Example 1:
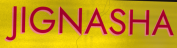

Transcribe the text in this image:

JIGNASHA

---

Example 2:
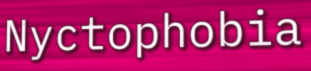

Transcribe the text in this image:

Nyctophobia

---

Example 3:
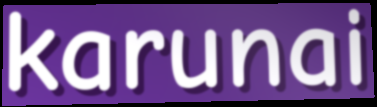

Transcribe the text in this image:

karunai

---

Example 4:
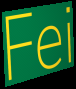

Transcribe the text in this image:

Fei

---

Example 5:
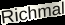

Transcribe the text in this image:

Richmal